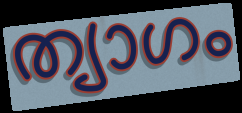
ത്യാഗം